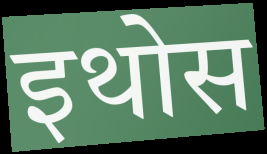
इथोस